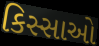
કિસ્સાઓ